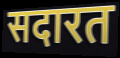
सदारत